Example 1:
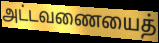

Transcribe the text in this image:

அட்டவணையைத்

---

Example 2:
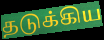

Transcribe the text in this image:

தடுக்கிய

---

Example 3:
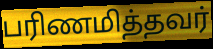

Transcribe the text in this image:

பரிணமித்தவர்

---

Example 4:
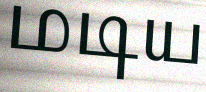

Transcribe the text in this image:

மடிய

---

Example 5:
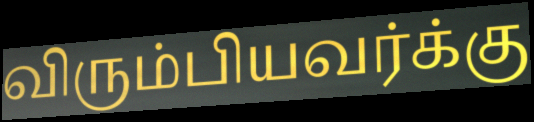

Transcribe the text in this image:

விரும்பியவர்க்கு